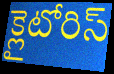
క్లైటోరిస్